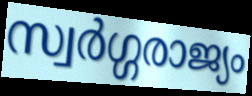
സ്വർഗ്ഗരാജ്യം